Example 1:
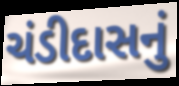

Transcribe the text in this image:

ચંડીદાસનું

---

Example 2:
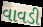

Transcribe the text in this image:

વાવડી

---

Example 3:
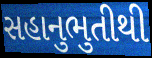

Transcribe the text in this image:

સહાનુભુતીથી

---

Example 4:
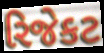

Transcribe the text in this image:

રિજેકટ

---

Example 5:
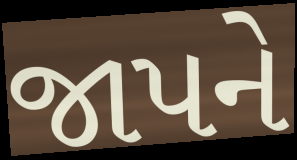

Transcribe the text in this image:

જાપને